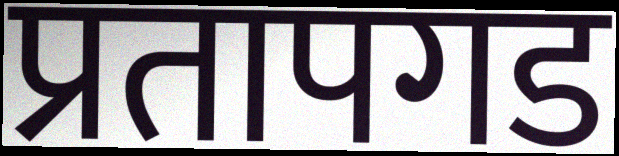
प्रतापगड